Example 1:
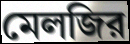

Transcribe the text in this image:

মেলজির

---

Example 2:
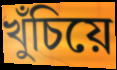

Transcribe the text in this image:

খুঁচিয়ে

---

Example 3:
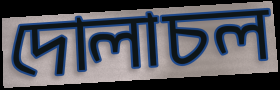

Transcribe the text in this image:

দোলাচল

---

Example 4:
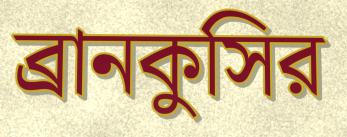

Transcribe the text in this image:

ব্রানকুসির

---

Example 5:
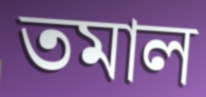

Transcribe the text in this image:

তমাল